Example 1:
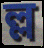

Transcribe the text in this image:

ল্ল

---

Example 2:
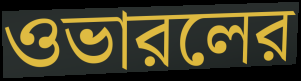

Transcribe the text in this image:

ওভারলের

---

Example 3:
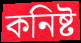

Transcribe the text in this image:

কনিষ্ট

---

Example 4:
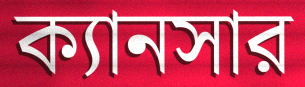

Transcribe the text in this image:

ক্যানসার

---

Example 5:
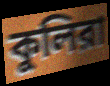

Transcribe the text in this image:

কুলিরা